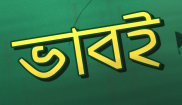
ভাবই